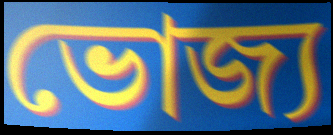
ভোজ্য